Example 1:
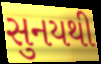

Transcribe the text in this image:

સુનયથી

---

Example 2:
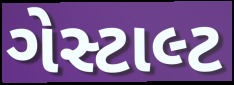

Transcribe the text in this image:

ગેસ્ટાલ્ટ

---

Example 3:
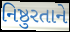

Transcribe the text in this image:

નિષ્ઠુરતાને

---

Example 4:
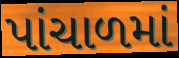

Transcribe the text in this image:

પાંચાળમાં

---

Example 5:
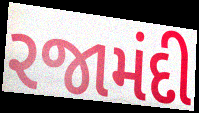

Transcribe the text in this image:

રજામંદી